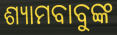
ଶ୍ୟାମବାବୁଙ୍କ